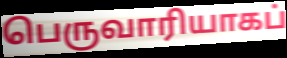
பெருவாரியாகப்